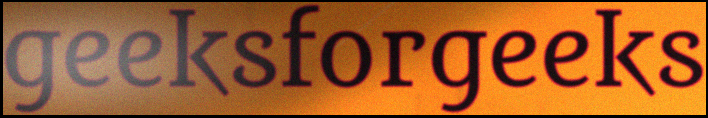
geeksforgeeks